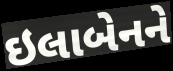
ઇલાબેનને